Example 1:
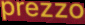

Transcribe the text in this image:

prezzo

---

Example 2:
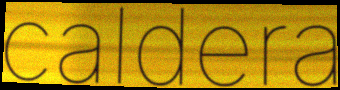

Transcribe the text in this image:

caldera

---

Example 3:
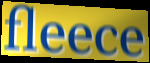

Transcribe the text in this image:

fleece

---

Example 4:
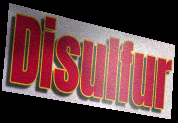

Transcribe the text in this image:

Disulfur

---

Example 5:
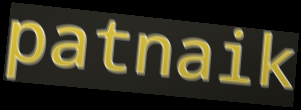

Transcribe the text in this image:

patnaik